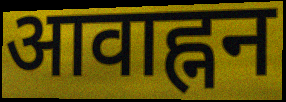
आवाह्नन